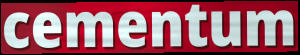
cementum